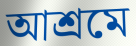
আশ্রমে